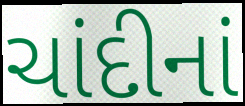
ચાંદીનાં